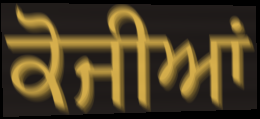
ਕੋਜੀਆਂ